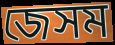
জেসম